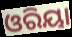
ଓରିୟା